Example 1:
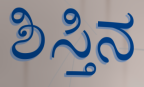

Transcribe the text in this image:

ಶಿಸ್ತಿನ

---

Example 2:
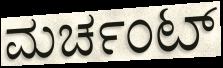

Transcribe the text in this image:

ಮರ್ಚಂಟ್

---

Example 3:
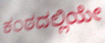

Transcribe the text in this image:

ಕಂಠದಲ್ಲಿಯೇ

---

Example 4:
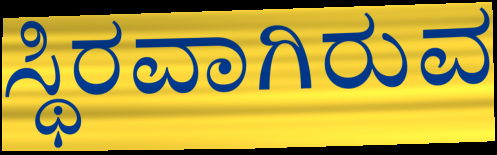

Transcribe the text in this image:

ಸ್ಥಿರವಾಗಿರುವ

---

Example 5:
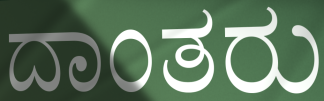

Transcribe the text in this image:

ದಾಂತರು